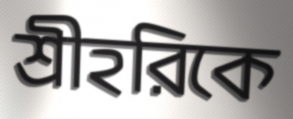
শ্রীহরিকে